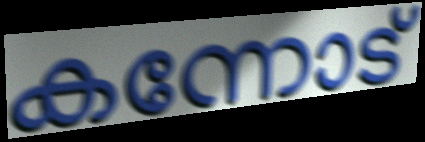
കന്നോട്